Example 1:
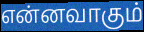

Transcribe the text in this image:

என்னவாகும்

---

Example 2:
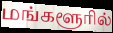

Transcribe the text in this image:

மங்களூரில்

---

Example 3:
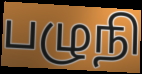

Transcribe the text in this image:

பழுநி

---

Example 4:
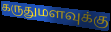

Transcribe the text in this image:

கருதுமளவுக்கு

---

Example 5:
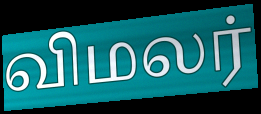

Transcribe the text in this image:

விமலர்